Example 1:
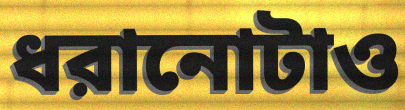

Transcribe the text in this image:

ধরানোটাও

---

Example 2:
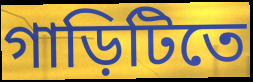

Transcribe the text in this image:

গাড়িটিতে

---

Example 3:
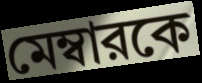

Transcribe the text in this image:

মেম্বারকে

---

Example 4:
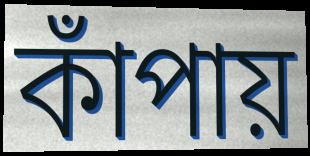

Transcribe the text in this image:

কাঁপায়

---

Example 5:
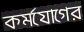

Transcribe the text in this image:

কর্মযোগের